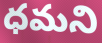
ధమని